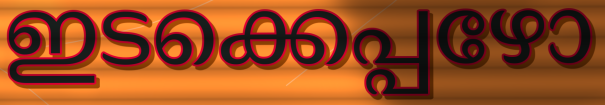
ഇടക്കെപ്പഴോ